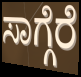
ಸಾಗ್ಗೆರೆ